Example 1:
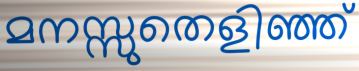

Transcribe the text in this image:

മനസ്സുതെളിഞ്ഞ്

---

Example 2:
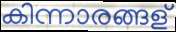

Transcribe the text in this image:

കിന്നാരങ്ങള്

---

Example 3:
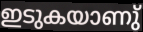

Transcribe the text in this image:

ഇടുകയാണു്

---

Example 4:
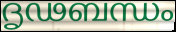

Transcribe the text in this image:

ദൃഢബന്ധം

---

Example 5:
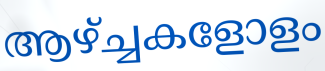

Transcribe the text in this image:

ആഴ്ച്ചകളോളം